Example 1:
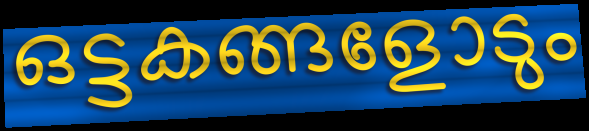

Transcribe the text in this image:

ഒട്ടകങ്ങളോടും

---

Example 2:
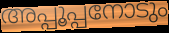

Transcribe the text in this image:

അപ്പൂപ്പനോടും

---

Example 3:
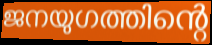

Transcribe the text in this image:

ജനയുഗത്തിന്റെ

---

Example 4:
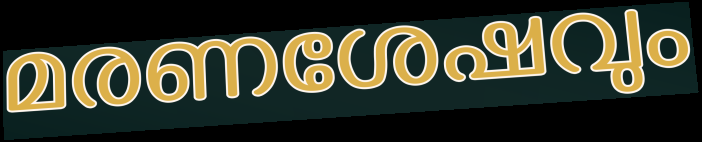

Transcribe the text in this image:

മരണശേഷവും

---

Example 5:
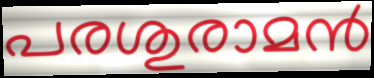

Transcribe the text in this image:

പരശുരാമൻ